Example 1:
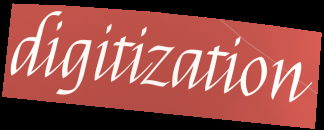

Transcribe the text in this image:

digitization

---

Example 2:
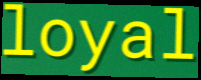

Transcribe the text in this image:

loyal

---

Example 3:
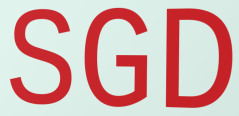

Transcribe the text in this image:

SGD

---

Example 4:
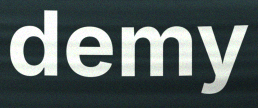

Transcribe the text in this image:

demy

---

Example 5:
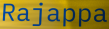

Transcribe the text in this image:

Rajappa